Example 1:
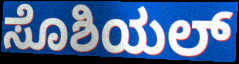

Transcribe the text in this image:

ಸೊಶಿಯಲ್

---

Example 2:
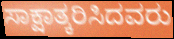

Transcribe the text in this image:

ಸಾಕ್ಷಾತ್ಕರಿಸಿದವರು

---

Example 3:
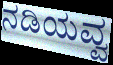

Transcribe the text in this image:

ನಡಿಯವ್ವ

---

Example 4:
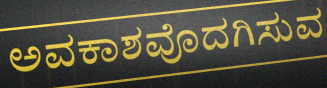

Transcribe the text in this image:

ಅವಕಾಶವೊದಗಿಸುವ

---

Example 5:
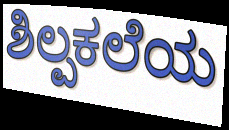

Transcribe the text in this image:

ಶಿಲ್ಪಕಲೆಯ